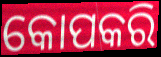
କୋପକରି